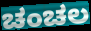
ಚಂಚಲ